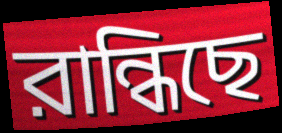
রান্ধিছে